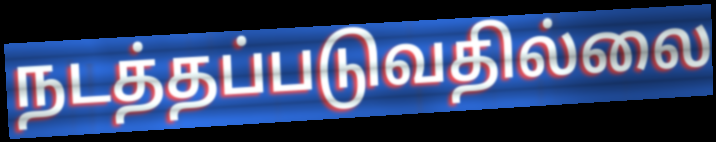
நடத்தப்படுவதில்லை